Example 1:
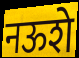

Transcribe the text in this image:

नऊशे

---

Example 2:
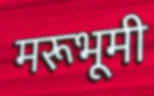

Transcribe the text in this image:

मरूभूमी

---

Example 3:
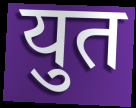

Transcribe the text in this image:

युत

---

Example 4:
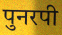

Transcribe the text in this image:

पुनरपी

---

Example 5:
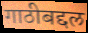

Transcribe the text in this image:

गाठीबद्दल